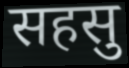
सहसु